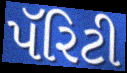
પૅરિટી